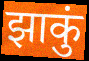
झाकुं